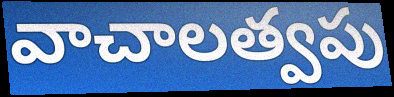
వాచాలత్వపు